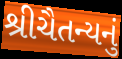
શ્રીચૈતન્યનું